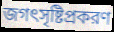
জগৎসৃষ্টিপ্রকরণ